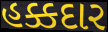
હક્કદાર